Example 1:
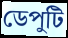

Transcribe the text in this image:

ডেপুটি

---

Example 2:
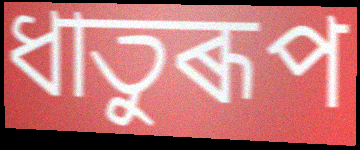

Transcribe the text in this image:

ধাতুৰূপ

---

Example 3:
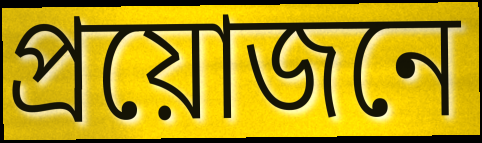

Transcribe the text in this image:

প্ৰয়োজনে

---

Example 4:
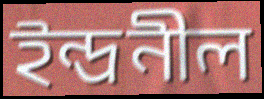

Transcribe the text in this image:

ইন্দ্ৰনীল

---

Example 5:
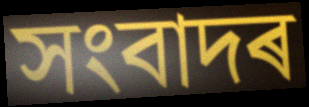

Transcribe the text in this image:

সংবাদৰ